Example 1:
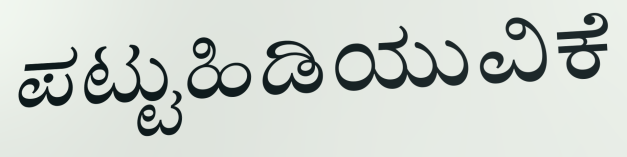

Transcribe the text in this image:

ಪಟ್ಟುಹಿಡಿಯುವಿಕೆ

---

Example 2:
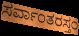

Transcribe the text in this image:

ಸರ್ವಾಂತರಸ್ತಂ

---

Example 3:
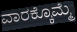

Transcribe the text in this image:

ವಾರಕ್ಕೊಮ್ಮೆ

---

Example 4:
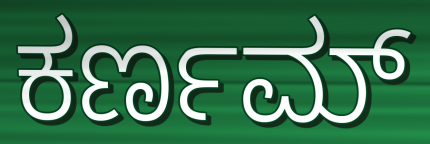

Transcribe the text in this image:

ಕರ್ಣಮ್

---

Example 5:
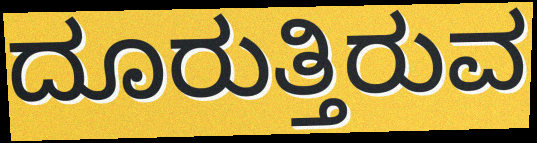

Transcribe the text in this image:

ದೂರುತ್ತಿರುವ